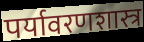
पर्यावरणशास्त्र